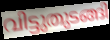
വിട്ടുതുടങ്ങി